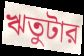
ঋতুটার